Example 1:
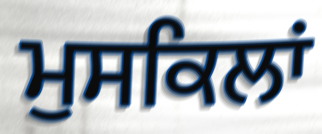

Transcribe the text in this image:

ਮੁਸਕਿਲਾਂ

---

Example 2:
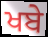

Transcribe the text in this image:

ਖਬੇ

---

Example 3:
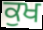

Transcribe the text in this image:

ਕੁਖ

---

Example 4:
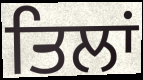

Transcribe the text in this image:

ਤਿਲਾਂ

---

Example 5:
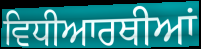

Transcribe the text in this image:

ਵਿਧੀਆਰਥੀਆਂ